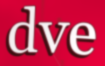
dve